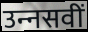
उन्नसवीं